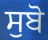
ਸੁਬੋ